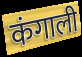
कंगाली